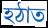
হঠাত